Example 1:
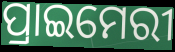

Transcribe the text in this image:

ପ୍ରାଇମେରୀ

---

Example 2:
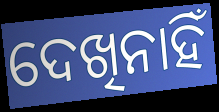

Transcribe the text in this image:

ଦେଖିନାହିଁ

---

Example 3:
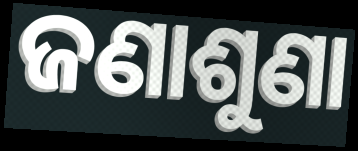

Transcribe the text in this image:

ଜଣାଶୁଣା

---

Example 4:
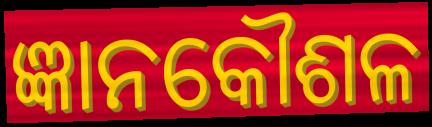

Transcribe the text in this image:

ଜ୍ଞାନକୌଶଳ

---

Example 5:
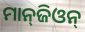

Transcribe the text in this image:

ମାନ୍‌ଜିଓନ୍